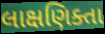
લાક્ષણિક્તા